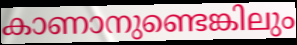
കാണാനുണ്ടെങ്കിലും